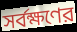
সর্বক্ষণের